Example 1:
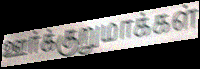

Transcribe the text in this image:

ஊர்க்குறுமாக்கள்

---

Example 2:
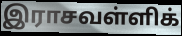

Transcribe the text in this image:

இராசவள்ளிக்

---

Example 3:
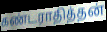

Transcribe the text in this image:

கண்டராதித்தன்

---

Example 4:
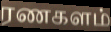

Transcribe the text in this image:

ரணகளம்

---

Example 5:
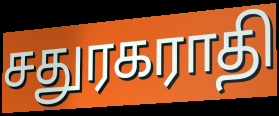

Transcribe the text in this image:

சதுரகராதி